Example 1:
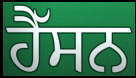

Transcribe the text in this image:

ਹੈੱਸਨ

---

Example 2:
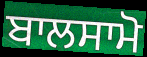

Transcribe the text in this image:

ਬਾਲਸਾਮੋ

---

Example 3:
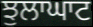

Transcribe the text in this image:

ਝੁਲਾਘਾਟ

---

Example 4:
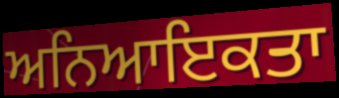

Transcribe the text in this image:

ਅਨਿਆਇਕਤਾ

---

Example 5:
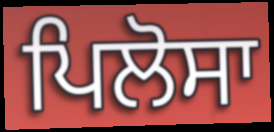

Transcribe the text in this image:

ਪਿਲੋਸਾ